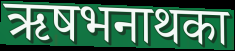
ऋषभनाथका